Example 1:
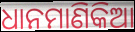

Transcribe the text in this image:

ଧାନମାଣିକିଆ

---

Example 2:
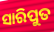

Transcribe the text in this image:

ସାରିପୁତ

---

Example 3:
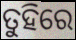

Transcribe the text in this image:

ତୁହିରେ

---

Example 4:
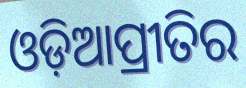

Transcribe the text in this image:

ଓଡ଼ିଆପ୍ରୀତିର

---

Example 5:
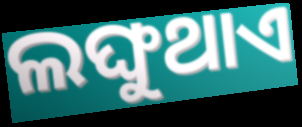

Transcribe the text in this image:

ଲଙ୍ଘୁଥାଏ